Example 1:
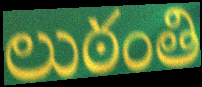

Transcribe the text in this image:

లుఠంతి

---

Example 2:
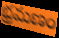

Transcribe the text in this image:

భ్రమణం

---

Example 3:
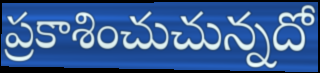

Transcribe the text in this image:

ప్రకాశించుచున్నదో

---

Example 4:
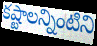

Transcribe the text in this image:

కష్టాలన్నింటిని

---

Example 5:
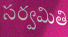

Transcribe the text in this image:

సర్వమితి